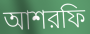
আশরফি